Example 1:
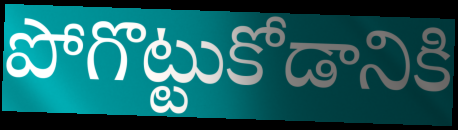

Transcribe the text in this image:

పోగొట్టుకోడానికి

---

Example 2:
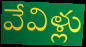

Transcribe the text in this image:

వేవిళ్లు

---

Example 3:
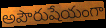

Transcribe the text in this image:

అపౌరుషేయంగా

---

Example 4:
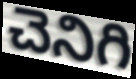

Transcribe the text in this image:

చెనిగి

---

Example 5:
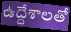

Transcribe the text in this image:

ఉద్దేశాలతో